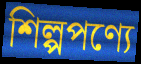
শিল্পপণ্যে